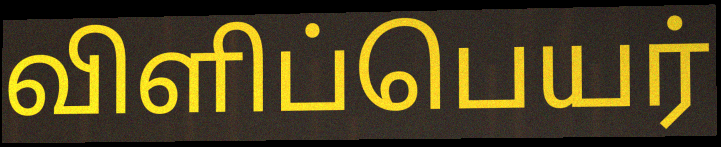
விளிப்பெயர்